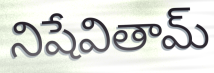
నిషేవితామ్